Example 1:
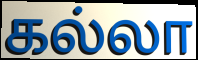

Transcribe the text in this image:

கல்லா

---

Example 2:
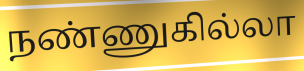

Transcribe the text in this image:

நண்ணுகில்லா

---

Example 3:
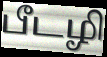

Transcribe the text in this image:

பீடழி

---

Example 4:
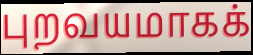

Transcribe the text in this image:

புறவயமாகக்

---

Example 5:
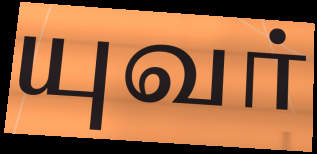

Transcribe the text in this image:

யுவர்